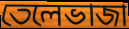
তেলেভাজা